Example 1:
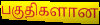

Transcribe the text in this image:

பகுதிகளான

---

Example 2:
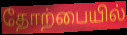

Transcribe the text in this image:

தோற்பையில்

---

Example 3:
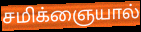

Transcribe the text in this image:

சமிக்ஞையால்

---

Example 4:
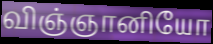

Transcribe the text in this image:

விஞ்ஞானியோ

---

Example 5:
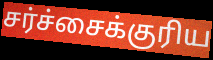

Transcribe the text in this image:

சர்ச்சைக்குரிய